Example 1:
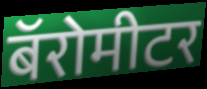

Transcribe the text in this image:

बॅरोमीटर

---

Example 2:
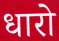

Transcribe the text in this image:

धारो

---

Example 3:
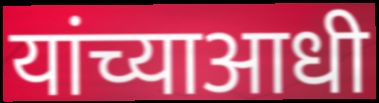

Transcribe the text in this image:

यांच्याआधी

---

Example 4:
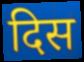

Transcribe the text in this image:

दिस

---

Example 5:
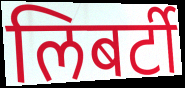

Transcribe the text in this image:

लिबर्टी